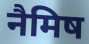
नैमिष